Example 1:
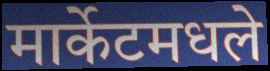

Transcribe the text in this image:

मार्केटमधले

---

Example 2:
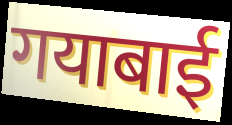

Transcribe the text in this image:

गयाबाई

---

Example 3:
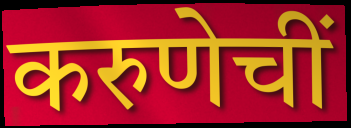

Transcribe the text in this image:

करुणेचीं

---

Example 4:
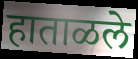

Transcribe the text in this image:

हाताळले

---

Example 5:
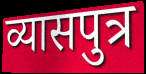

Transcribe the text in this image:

व्यासपुत्र